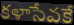
కళాసేవకే